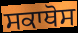
ਸਕਾਥੋਸ